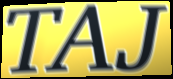
TAJ